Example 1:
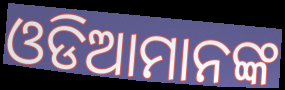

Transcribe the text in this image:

ଓଡିଆମାନଙ୍କ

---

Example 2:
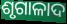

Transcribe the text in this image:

ଶୃଗାଳାଦ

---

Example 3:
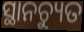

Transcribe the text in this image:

ସ୍ଥାନଚ୍ୟୁତ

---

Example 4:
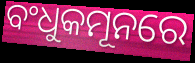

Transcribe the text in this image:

ବଂଧୁକମୂନରେ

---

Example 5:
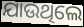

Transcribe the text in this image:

ଯାଉଥିଲେ